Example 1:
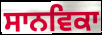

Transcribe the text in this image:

ਸਾਨਵਿਕਾ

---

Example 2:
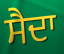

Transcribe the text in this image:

ਸੈਦਾ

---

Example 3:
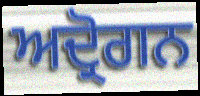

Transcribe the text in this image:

ਅਦ੍ਰੋਗਨ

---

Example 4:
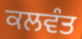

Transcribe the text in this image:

ਕਲਵੰਤ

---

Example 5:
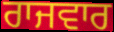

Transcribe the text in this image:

ਰਾਜਵਾਰ